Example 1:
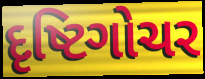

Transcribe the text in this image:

દૃષ્ટિગોચર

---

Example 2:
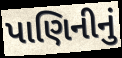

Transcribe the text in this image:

પાણિનીનું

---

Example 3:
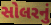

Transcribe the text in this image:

સોલરનું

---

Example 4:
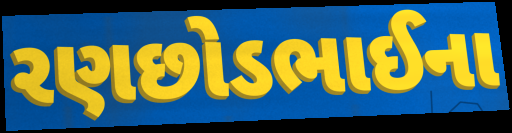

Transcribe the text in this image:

રણછોડભાઈના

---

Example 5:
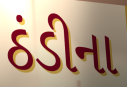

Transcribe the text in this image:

ઠંડીના